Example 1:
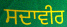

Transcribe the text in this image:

ਸਦਾਵੀਰ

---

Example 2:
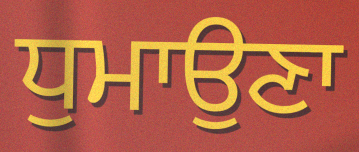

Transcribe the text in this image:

ਧੁਮਾਉਣਾ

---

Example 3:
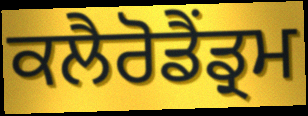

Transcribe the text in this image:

ਕਲੈਰੋਡੈਂਡ੍ਰਮ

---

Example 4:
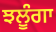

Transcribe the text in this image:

ਝਲੂੰਗਾ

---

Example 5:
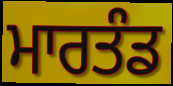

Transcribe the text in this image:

ਮਾਰਤੰਡ